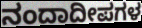
ನಂದಾದೀಪಗಳ